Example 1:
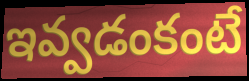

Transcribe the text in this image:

ఇవ్వడంకంటే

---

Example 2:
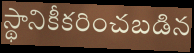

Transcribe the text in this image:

స్థానికీకరించబడిన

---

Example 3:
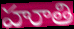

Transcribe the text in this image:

హూతి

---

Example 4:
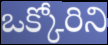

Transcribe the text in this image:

ఒక్కోరిని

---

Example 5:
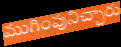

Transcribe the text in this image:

ముగింపునిచ్చారు